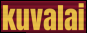
kuvalai